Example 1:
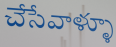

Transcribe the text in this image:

చేసేవాళ్ళూ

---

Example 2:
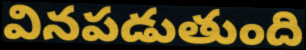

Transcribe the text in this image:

వినపడుతుంది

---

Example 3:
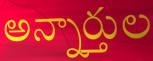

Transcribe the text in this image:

అన్నార్తుల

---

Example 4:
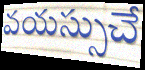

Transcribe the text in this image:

వయస్సుచే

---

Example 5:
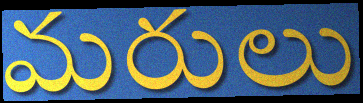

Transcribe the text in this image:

మరులు